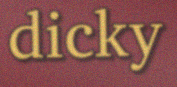
dicky